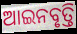
ଆଇନବୃତ୍ତି